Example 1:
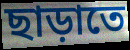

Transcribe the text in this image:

ছাড়াতে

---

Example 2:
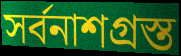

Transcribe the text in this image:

সর্বনাশগ্রস্ত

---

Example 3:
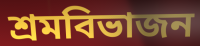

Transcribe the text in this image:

শ্রমবিভাজন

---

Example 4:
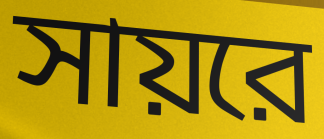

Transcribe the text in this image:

সায়রে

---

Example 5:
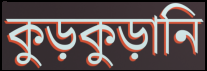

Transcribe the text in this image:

কুড়কুড়ানি